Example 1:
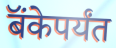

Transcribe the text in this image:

बॅंकेपर्यंत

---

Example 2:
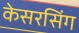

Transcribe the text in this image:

केसरसिंग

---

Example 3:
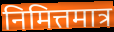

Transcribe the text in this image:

निमित्तमात्र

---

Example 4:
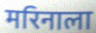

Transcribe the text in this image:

मरिनाला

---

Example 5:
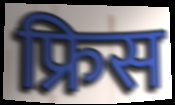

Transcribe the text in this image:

फ्रिस